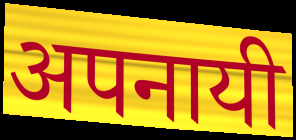
अपनायी